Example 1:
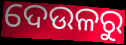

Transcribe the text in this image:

ଦେଉଳରୁ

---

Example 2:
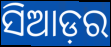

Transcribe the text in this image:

ସିଆଡ଼ର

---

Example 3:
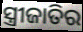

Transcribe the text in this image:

ସ୍ତ୍ରୀଜାତିର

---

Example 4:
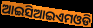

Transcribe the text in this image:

ଆଇସିଆଇଏମଓଡି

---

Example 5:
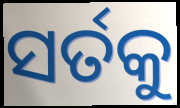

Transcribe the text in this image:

ସର୍ତକୁ